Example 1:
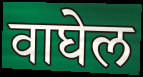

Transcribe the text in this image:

वाघेल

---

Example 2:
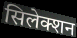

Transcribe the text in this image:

सिलेक्शन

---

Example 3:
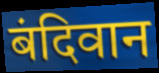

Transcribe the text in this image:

बंदिवान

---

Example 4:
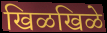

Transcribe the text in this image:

खिळखिळे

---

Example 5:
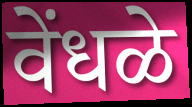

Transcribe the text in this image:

वेंधळे